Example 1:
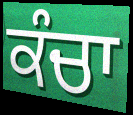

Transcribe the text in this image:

ਕੰਚਾ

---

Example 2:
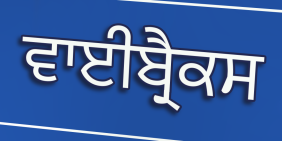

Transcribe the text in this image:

ਵਾਈਬ੍ਰੈਕਸ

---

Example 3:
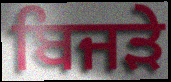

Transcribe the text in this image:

ਬਿਜੜੇ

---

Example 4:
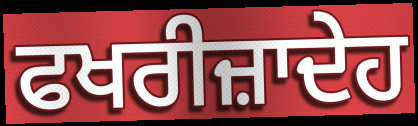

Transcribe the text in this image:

ਫਖਰੀਜ਼ਾਦੇਹ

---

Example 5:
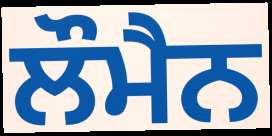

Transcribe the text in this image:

ਲੌਮੈਨ